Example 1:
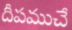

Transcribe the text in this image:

దీపముచే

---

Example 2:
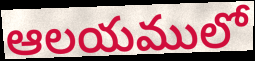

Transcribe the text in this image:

ఆలయములో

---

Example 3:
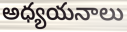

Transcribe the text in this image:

అధ్యయనాలు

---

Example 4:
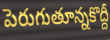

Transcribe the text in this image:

పెరుగుతూన్నకొద్దీ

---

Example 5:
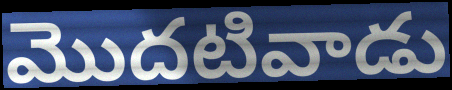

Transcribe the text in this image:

మొదటివాడు